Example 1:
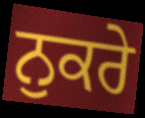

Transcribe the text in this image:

ਨੁਕਰੇ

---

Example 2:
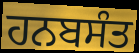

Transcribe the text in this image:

ਹਨਬਸੰਤ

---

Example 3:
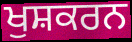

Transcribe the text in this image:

ਖੁਸ਼ਕਰਨ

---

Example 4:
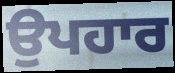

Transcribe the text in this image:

ਉਪਹਾਰ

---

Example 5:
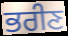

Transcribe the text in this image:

ਭਰੀਣ